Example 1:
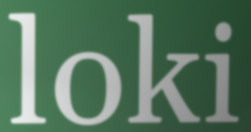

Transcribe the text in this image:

loki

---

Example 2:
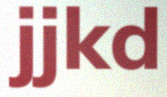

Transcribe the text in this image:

jjkd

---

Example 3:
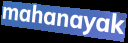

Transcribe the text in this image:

mahanayak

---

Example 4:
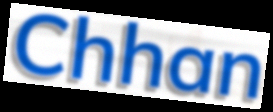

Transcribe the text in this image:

Chhan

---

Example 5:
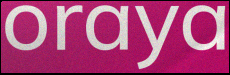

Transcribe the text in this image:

oraya